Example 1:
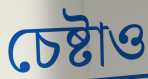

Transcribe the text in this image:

চেষ্টাও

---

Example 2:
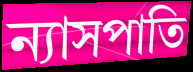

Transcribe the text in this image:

ন্যাসপাতি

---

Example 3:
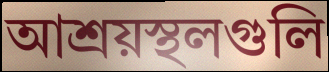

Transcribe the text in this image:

আশ্রয়স্থলগুলি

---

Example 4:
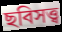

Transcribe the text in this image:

ছবিসত্ত্ব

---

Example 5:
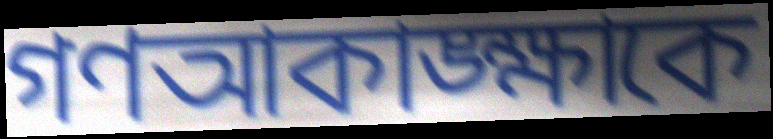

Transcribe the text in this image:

গণআকাঙ্ক্ষাকে